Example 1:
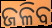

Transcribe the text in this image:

ଜଳିବ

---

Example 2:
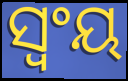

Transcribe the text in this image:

ସ୍ୱଂୟ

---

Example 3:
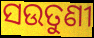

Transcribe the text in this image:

ସଉତୁଣୀ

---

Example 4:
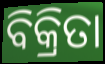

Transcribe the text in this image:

ବିକ୍ରିତା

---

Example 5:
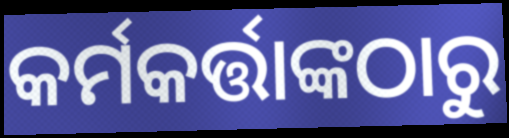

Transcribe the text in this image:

କର୍ମକର୍ତ୍ତାଙ୍କଠାରୁ